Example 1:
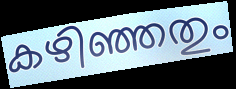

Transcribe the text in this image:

കഴിഞ്ഞതും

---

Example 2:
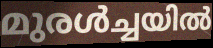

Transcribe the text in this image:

മുരൾച്ചയിൽ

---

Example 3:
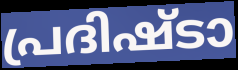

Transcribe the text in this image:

പ്രദിഷ്ടാ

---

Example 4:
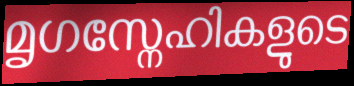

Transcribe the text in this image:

മൃഗസ്നേഹികളുടെ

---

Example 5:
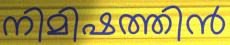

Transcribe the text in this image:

നിമിഷത്തിൻ